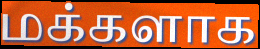
மக்களாக